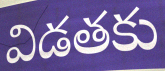
విడతకు